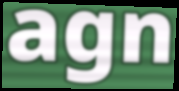
agn